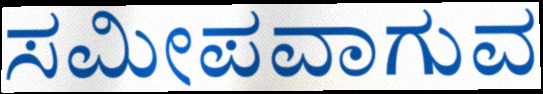
ಸಮೀಪವಾಗುವ